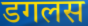
डगलस